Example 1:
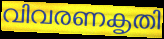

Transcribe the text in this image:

വിവരണകൃതി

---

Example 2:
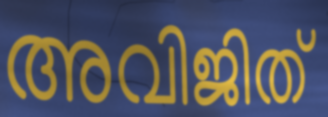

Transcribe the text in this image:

അവിജിത്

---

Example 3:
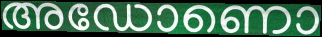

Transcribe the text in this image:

അഡോണൊ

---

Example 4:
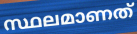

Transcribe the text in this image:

സ്ഥലമാണത്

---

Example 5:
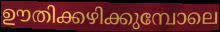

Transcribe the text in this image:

ഊതിക്കഴിക്കുമ്പോലെ